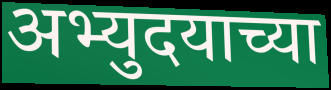
अभ्युदयाच्या